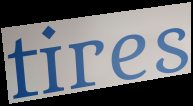
tires